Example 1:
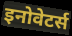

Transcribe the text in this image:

इनोवेटर्स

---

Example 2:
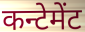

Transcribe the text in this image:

कन्टेमेंट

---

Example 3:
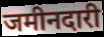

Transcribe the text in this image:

जमीनदारी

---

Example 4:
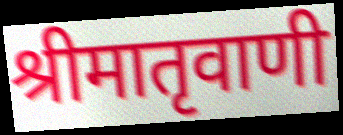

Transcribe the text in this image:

श्रीमातृवाणी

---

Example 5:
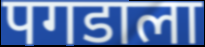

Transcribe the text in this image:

पगडाला